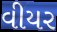
વીયર